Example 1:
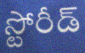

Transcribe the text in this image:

స్టోరీడ్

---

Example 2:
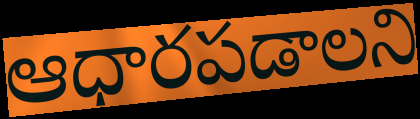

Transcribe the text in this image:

ఆధారపడాలని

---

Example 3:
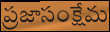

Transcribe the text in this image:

ప్రజాసంక్షేమ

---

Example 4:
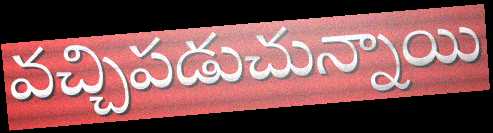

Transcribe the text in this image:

వచ్చిపడుచున్నాయి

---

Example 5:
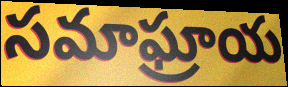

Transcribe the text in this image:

సమాఘ్రాయ